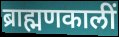
ब्राह्मणकालीं